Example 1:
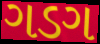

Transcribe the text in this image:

ગડગ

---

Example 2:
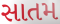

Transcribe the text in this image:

સાતમ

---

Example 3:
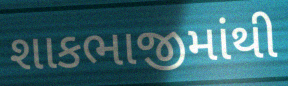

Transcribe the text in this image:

શાકભાજીમાંથી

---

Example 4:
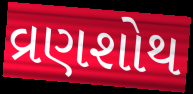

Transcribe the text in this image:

વ્રણશોથ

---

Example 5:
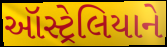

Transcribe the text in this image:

ઑસ્ટ્રેલિયાને